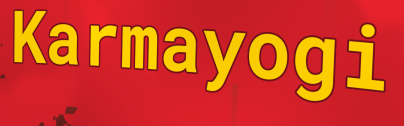
Karmayogi